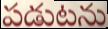
పడుటను